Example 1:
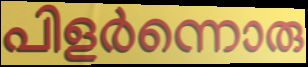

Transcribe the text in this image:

പിളർന്നൊരു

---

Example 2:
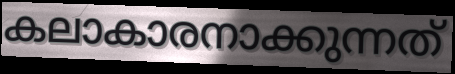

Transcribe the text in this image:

കലാകാരനാക്കുന്നത്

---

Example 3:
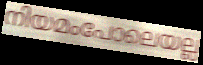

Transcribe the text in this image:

നിയമംപോലെയല്ല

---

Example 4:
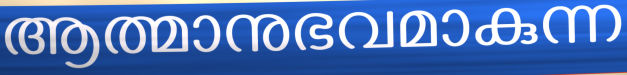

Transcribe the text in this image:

ആത്മാനുഭവമാകുന്ന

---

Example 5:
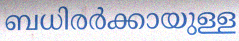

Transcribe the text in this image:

ബധിരർക്കായുള്ള